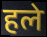
हले